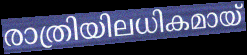
രാത്രിയിലധികമായ്